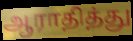
ஆராதித்து